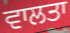
ਵਾਲਤਾ